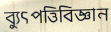
ব্যুৎপত্তিবিজ্ঞান